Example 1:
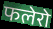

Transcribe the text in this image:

फलेरो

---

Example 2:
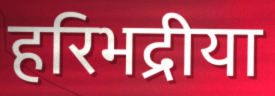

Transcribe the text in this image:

हरिभद्रीया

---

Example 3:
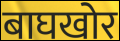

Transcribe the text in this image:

बाघखोर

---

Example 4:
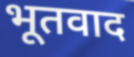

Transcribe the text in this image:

भूतवाद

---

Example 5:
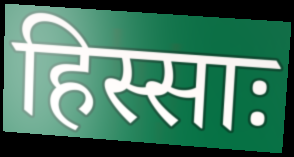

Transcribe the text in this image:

हिस्साः